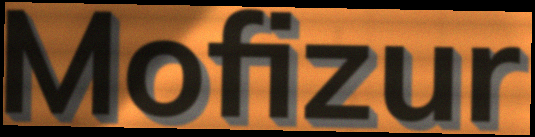
Mofizur